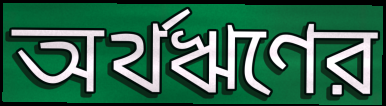
অর্থঋণের